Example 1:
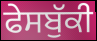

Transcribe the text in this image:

ਫੇਸਬੁੱਕੀ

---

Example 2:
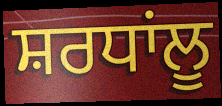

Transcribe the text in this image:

ਸ਼ਰਧਾਂਲੂ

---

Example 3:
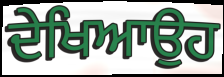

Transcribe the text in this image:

ਦੇਖਿਆਉਹ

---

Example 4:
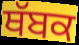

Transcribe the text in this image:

ਥੱਬਕ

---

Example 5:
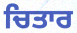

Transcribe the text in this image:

ਚਿਤਾਰ